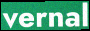
vernal